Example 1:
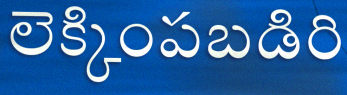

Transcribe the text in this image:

లెక్కింపబడిరి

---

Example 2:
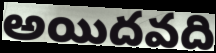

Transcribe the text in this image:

అయిదవది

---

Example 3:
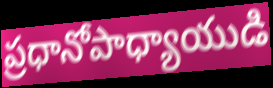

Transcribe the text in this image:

ప్రధానోపాధ్యాయుడి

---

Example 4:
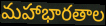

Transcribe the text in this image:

మహాభారతాల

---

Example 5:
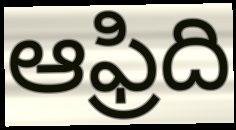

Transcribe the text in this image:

ఆఫ్రిది